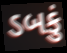
ડબકું